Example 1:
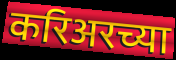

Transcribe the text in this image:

करिअरच्या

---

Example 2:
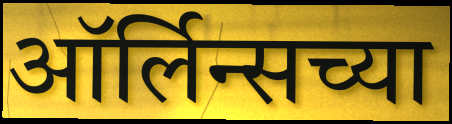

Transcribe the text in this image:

ऑर्लिन्सच्या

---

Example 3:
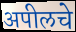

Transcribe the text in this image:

अपीलचे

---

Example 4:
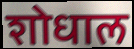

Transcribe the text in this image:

शोधाल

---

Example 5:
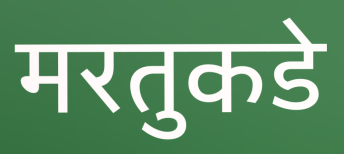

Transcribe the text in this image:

मरतुकडे